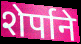
शेर्पाने